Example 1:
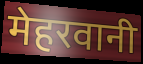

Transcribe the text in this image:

मेहरवानी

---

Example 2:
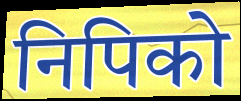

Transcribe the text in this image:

निपिको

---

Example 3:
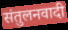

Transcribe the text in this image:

संतुलनवादी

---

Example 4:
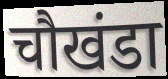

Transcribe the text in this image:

चौखंडा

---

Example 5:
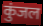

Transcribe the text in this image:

कुंजल